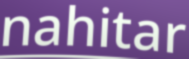
nahitar